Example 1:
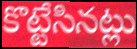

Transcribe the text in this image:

కొట్టేసినట్లు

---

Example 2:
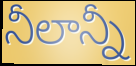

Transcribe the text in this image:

నీలాన్నీ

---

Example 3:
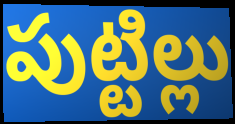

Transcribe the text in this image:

పుట్టిల్లు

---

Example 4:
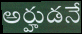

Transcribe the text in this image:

అర్హుడనే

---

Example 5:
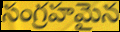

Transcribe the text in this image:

సంగ్రహమైన